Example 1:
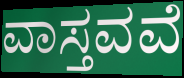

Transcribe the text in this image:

ವಾಸ್ತವವೆ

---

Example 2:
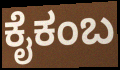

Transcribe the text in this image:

ಕೈಕಂಬ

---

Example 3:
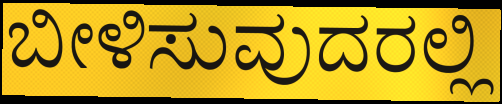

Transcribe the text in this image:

ಬೀಳಿಸುವುದರಲ್ಲಿ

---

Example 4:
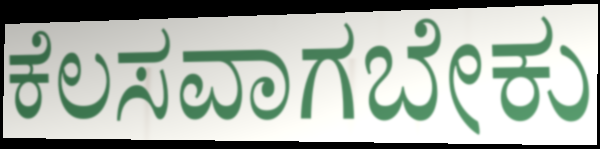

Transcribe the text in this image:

ಕೆಲಸವಾಗಬೇಕು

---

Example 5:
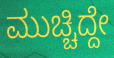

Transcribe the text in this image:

ಮುಚ್ಚಿದ್ದೇ